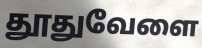
தூதுவேளை